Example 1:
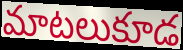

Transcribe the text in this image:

మాటలుకూడ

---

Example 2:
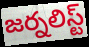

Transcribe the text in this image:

జర్నలిస్ట్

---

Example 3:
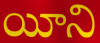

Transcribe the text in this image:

యీని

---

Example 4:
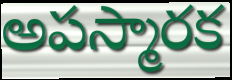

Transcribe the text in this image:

అపస్మారక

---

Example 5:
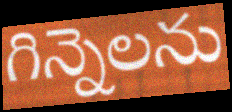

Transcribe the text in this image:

గిన్నెలను